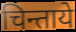
चिन्ताये